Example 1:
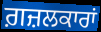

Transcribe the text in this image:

ਗ਼ਜ਼ਲਕਾਰਾਂ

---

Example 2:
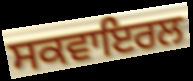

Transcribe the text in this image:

ਸਕਵਾਇਰਲ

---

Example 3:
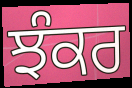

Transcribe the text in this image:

ਝੰਕਰ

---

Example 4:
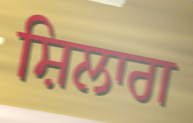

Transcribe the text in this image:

ਸ਼ਿਲਾਗ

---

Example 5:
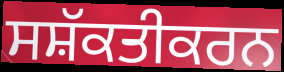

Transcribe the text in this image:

ਸਸ਼ੱਕਤੀਕਰਨ